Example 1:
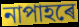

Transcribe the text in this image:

নাপাহৰে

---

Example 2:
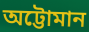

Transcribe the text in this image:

অট্টোমান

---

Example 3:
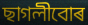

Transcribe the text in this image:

ছাগলীবোৰ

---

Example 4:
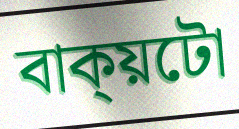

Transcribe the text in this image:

বাক্য়টো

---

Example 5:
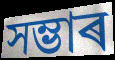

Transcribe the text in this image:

সম্ভাৰ